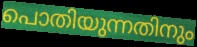
പൊതിയുന്നതിനും